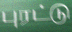
புரட்டு